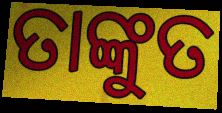
ତାଙ୍କୁତ